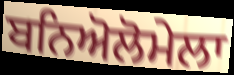
ਬਨਿਅੋਲੋਮੇਲਾ